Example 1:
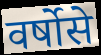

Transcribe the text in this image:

वर्षोसे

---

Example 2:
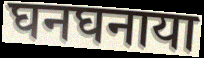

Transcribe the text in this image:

घनघनाया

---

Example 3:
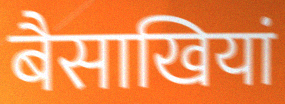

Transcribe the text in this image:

बैसाखियां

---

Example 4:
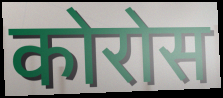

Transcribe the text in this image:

कोरोस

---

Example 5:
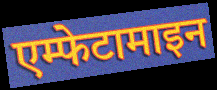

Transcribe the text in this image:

एम्फेटामाइन